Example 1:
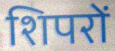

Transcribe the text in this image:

शिपरों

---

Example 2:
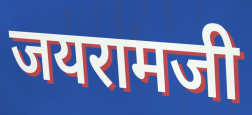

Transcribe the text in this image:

जयरामजी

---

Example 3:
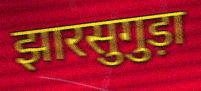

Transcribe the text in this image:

झारसुगुड़ा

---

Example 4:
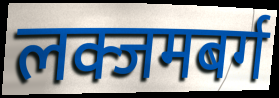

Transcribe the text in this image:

लक्जमबर्ग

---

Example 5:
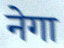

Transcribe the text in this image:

नेगा